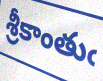
శ్రీకాంతుఁ